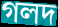
গলদ